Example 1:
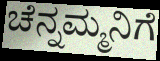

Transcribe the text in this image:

ಚೆನ್ನಮ್ಮನಿಗೆ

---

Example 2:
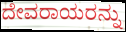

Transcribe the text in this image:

ದೇವರಾಯರನ್ನು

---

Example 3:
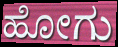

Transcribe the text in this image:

ಹೋಗು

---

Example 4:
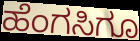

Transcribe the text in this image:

ಹೆಂಗಸಿಗೂ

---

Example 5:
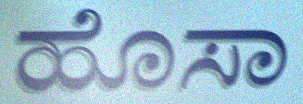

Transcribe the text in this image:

ಹೊಸಾ